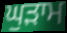
ਘੁੜਾਮ